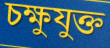
চক্ষুযুক্ত